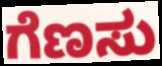
ಗೆಣಸು